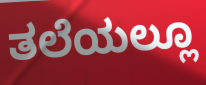
ತಲೆಯಲ್ಲೂ